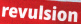
revulsion